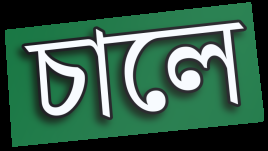
চালে